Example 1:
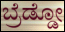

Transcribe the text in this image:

ಬ್ರೆಡ್ಡೋ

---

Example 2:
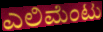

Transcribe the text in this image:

ಎಲಿಮೆಂಟು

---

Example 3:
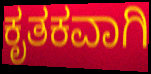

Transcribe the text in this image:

ಕೃತಕವಾಗಿ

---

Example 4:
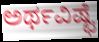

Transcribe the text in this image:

ಅರ್ಥವಿಷ್ಟೆ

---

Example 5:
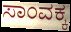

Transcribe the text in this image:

ಸಾಂವಕ್ಕ